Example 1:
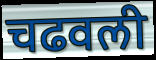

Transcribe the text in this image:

चढवली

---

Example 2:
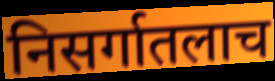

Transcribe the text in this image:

निसर्गातलाच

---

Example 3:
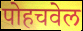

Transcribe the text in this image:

पोहचवेल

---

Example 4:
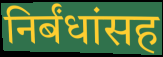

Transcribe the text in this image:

निर्बंधांसह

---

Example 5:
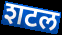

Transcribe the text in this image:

शटल